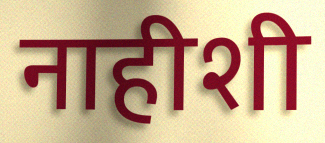
नाहीशी